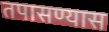
तपासण्यास